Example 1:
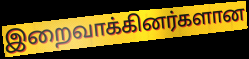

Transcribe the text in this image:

இறைவாக்கினர்களான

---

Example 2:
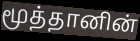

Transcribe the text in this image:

மூத்தானின்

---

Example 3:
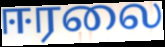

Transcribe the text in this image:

ஈரலை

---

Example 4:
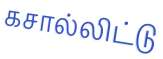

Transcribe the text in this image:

கசால்லிட்டு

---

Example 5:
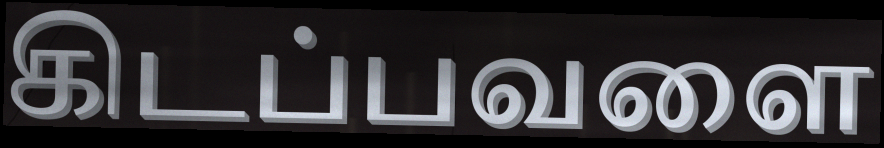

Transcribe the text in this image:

கிடப்பவளை